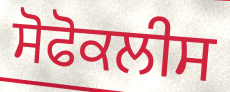
ਸੋਫੋਕਲੀਸ